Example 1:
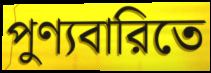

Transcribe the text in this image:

পুণ্যবারিতে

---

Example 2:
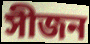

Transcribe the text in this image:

সীজন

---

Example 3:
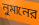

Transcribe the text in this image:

নুমানের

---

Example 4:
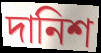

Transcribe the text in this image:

দানিশ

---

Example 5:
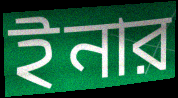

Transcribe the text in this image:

ইনার